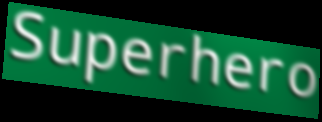
Superhero